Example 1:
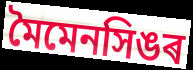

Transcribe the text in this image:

মৈমেনসিঙৰ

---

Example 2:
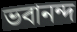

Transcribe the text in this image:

ভবানন্দ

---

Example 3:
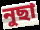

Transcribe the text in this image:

নুছা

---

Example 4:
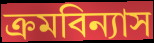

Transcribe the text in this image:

ক্ৰমবিন্যাস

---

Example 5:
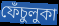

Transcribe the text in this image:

ফেঁচুলুকা